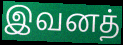
இவனத்